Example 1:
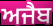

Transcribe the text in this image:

ਅਜੈਬ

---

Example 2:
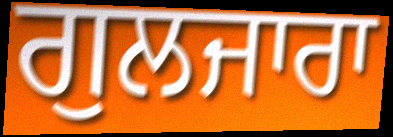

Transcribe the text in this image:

ਗੁਲਜਾਰਾ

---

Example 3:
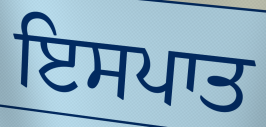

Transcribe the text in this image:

ਇਸਪਾਤ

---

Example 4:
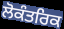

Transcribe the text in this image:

ਲੋਕੰਤਰਿਕ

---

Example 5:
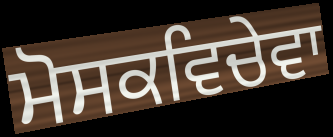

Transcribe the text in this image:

ਮੋਸਕਵਿਚੇਵਾ